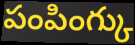
పంపింగ్కు